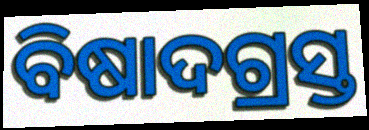
ବିଷାଦଗ୍ରସ୍ତ